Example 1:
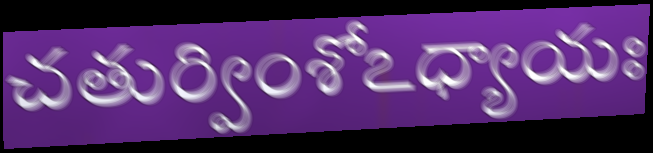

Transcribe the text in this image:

చతుర్వింశోఽధ్యాయః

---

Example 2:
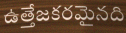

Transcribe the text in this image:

ఉత్తేజకరమైనది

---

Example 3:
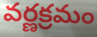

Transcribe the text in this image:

వర్ణక్రమం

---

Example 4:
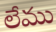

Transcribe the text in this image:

లేము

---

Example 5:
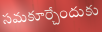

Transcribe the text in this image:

సమకూర్చేందుకు